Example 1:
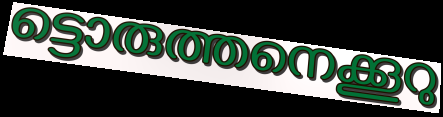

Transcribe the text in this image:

ട്ടൊരുത്തനെക്കൂറു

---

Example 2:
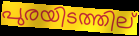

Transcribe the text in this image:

പുരയിടത്തില്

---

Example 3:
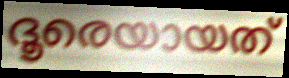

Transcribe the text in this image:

ദൂരെയായത്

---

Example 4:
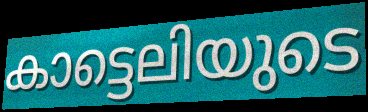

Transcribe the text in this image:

കാട്ടെലിയുടെ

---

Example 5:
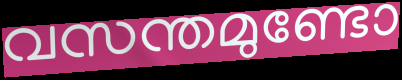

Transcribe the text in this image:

വസന്തമുണ്ടോ